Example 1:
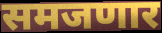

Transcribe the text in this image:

समजणार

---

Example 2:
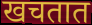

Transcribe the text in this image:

खचतात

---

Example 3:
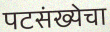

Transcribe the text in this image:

पटसंख्येचा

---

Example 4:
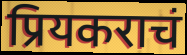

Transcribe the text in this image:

प्रियकराचं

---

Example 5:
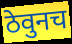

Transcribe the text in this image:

ठेवुनच